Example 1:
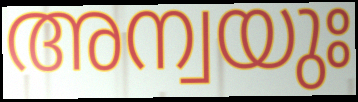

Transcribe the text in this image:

അന്വയുഃ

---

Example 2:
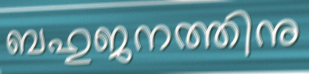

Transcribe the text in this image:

ബഹുജനത്തിനു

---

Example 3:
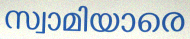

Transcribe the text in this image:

സ്വാമിയാരെ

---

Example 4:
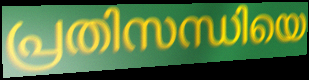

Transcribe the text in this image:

പ്രതിസന്ധിയെ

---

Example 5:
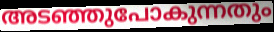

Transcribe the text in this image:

അടഞ്ഞുപോകുന്നതും